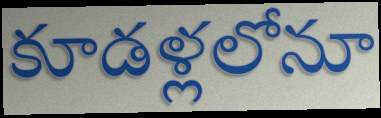
కూడళ్లలోనూ